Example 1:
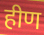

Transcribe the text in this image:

हीण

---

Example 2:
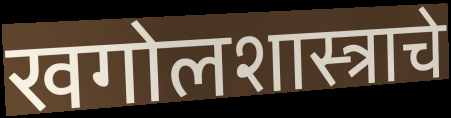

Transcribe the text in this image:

खगोलशास्त्राचे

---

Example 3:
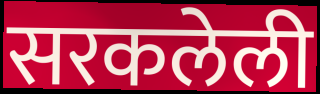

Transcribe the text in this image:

सरकलेली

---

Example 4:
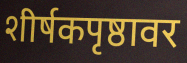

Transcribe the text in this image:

शीर्षकपृष्ठावर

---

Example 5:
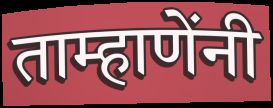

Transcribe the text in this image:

ताम्हाणेंनी